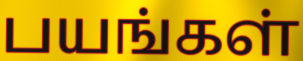
பயங்கள்